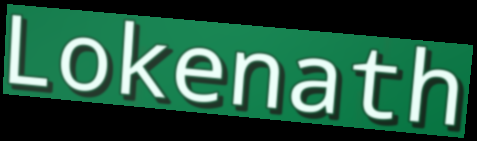
Lokenath